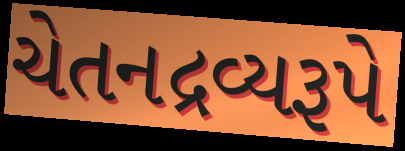
ચેતનદ્રવ્યરૂપે